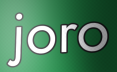
joro